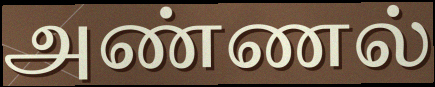
அண்ணல்